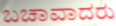
ಬಚಾವಾದರು